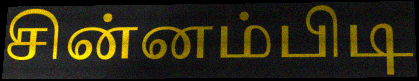
சின்னம்பிடி